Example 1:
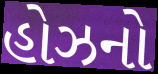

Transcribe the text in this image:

હોઝનો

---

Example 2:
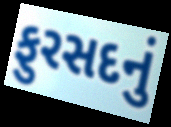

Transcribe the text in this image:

ફુરસદનું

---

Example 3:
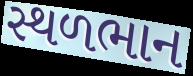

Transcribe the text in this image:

સ્થળભાન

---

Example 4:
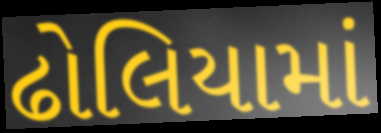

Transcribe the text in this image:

ઢોલિયામાં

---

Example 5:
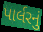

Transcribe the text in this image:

પાર્લરનું